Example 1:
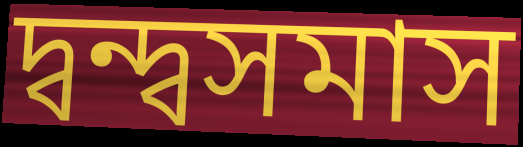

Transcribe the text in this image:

দ্বন্দ্বসমাস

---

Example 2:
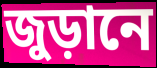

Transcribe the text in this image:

জুড়ানে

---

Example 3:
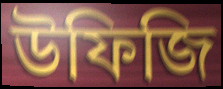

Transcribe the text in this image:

উফিজি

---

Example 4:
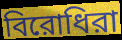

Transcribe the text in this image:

বিরোধিরা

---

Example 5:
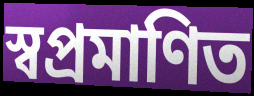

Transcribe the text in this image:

স্বপ্রমাণিত